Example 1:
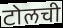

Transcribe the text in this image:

टोलची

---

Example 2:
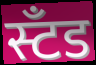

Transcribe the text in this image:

स्टॅंड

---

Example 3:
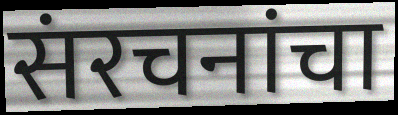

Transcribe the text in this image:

संरचनांचा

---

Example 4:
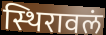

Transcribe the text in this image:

स्थिरावलं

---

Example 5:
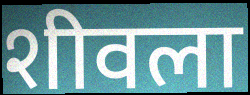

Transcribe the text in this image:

शीवला